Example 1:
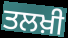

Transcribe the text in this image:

ਤਲਖ਼ੀ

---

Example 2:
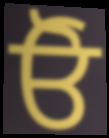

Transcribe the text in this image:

ਓੋ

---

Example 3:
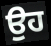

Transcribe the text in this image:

ਉਹ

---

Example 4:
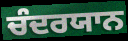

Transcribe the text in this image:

ਚੰਦਰਯਾਨ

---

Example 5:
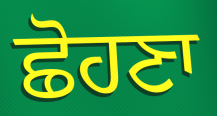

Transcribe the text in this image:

ਛੋਹਣਾ